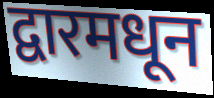
द्वारमधून